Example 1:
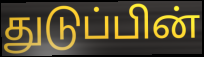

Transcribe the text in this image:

துடுப்பின்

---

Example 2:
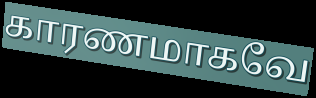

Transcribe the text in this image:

காரணமாகவே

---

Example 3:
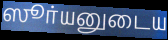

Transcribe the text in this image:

ஸூர்யனுடைய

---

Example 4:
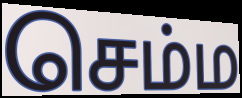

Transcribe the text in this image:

செம்ம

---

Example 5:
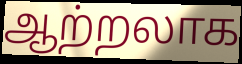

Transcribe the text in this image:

ஆற்றலாக